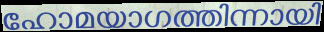
ഹോമയാഗത്തിന്നായി